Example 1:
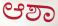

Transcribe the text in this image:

ಆಶಾ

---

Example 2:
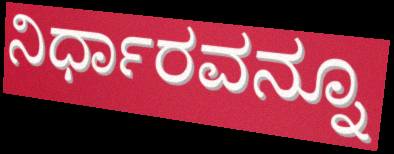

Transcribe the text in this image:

ನಿರ್ಧಾರವನ್ನೂ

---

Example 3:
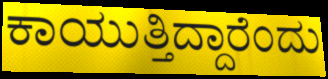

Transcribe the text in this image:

ಕಾಯುತ್ತಿದ್ದಾರೆಂದು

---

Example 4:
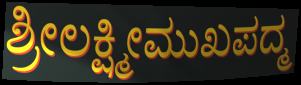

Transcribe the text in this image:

ಶ್ರೀಲಕ್ಷ್ಮೀಮುಖಪದ್ಮ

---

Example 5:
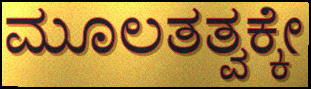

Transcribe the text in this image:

ಮೂಲತತ್ವಕ್ಕೇ